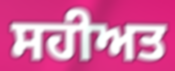
ਸਹੀਅਤ